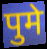
पुमे